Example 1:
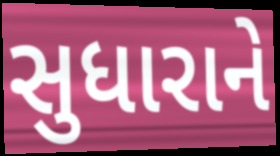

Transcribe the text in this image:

સુધારાને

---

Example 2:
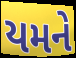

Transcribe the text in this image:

યમને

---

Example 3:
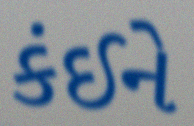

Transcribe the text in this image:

કંઈને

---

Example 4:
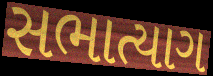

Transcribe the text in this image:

સભાત્યાગ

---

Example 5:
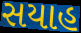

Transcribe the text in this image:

સયાહ